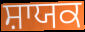
ਸ਼ਾਯਕ